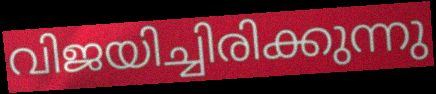
വിജയിച്ചിരിക്കുന്നു